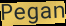
Pegan